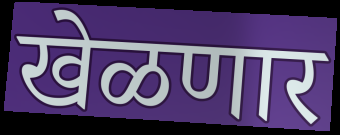
खेळणार